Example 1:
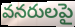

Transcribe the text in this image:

వనరులపై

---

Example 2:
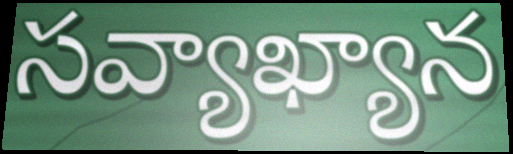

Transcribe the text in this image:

సవ్యాఖ్యాన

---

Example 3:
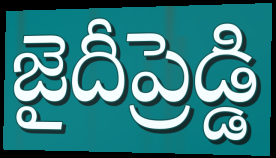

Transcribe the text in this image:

జైదీప్రెడ్డి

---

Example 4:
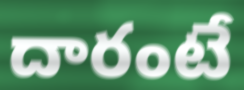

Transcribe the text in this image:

దారంటే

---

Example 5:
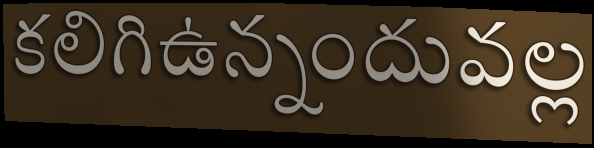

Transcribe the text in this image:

కలిగిఉన్నందువల్ల